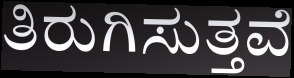
ತಿರುಗಿಸುತ್ತವೆ